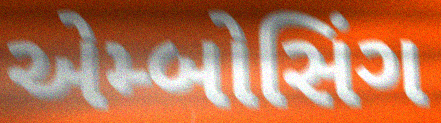
એમ્બોસિંગ